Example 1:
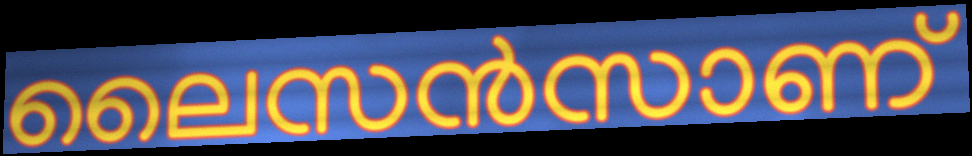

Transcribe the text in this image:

ലൈസൻസാണ്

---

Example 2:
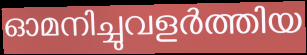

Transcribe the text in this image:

ഓമനിച്ചുവളർത്തിയ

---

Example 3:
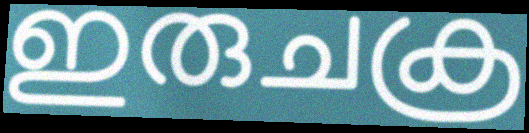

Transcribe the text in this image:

ഇരുചക്ര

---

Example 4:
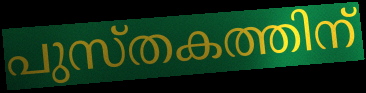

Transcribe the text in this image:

പുസ്തകത്തിന്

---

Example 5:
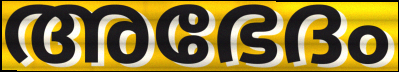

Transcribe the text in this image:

അഭേദം